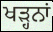
ਖੜ੍ਹਨਾਂ